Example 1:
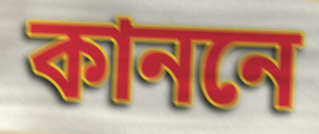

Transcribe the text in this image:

কাননে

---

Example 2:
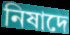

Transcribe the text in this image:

নিষাদে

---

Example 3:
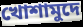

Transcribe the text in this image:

খোশামুদে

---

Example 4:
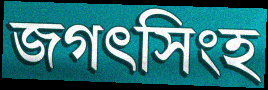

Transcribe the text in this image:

জগৎসিংহ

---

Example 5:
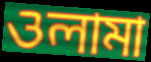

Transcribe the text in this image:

ওলামা